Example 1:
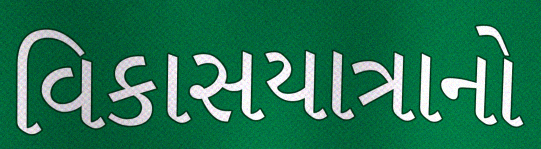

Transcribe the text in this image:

વિકાસયાત્રાનો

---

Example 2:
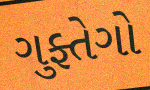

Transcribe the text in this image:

ગુફ્તેગો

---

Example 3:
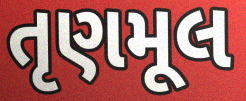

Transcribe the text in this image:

તૃણમૂલ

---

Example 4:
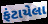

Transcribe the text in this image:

ફંટાયેલા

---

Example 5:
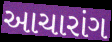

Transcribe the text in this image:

આચારાંગ